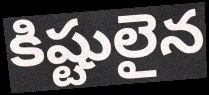
కిష్టులైన